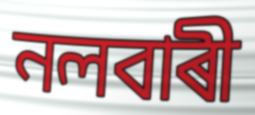
নলবাৰী